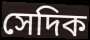
সেদিক